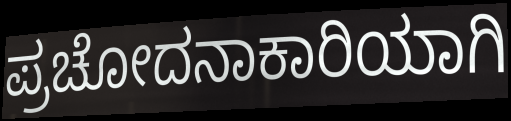
ಪ್ರಚೋದನಾಕಾರಿಯಾಗಿ